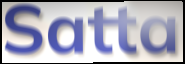
Satta